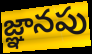
జ్ఞానపు